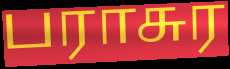
பராசுர